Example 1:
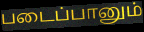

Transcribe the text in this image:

படைப்பானும்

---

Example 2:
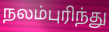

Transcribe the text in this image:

நலம்புரிந்து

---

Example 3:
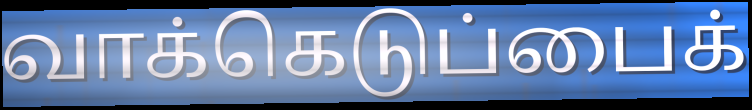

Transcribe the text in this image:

வாக்கெடுப்பைக்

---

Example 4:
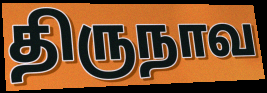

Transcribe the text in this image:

திருநாவ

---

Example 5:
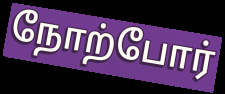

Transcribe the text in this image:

நோற்போர்